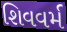
શિવવર્મ